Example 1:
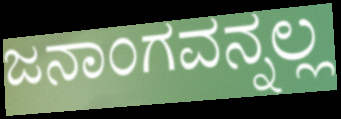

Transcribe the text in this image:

ಜನಾಂಗವನ್ನಲ್ಲ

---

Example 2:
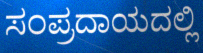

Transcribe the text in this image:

ಸಂಪ್ರದಾಯದಲ್ಲಿ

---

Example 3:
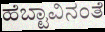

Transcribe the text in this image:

ಹೆಬ್ಟಾವಿನಂತೆ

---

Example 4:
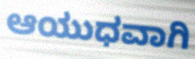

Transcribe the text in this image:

ಆಯುಧವಾಗಿ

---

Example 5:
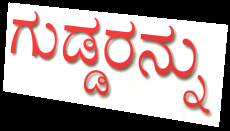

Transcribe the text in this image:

ಗುಡ್ಡರನ್ನು